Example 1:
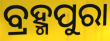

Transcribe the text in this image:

ବ୍ରହ୍ମପୁରା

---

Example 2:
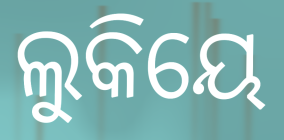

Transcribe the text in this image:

ଲୁକିୟେ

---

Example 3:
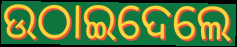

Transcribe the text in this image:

ଉଠାଇଦେଲେ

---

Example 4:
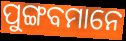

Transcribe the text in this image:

ପୁଙ୍ଗବମାନେ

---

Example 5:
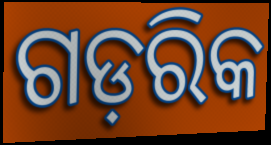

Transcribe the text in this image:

ଗଡ଼ରିକ